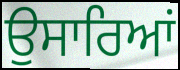
ਉਸਾਰਿਆਂ